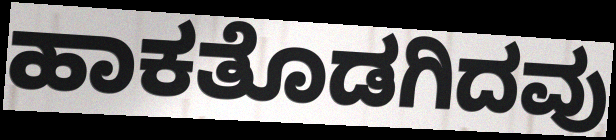
ಹಾಕತೊಡಗಿದವು